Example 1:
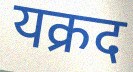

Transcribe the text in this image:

यक्रद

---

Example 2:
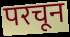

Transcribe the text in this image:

परचून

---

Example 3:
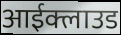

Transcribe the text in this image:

आईक्लाउड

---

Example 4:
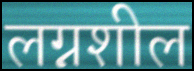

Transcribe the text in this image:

लग्नशील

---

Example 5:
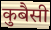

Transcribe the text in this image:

कुबैसी